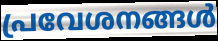
പ്രവേശനങ്ങൾ